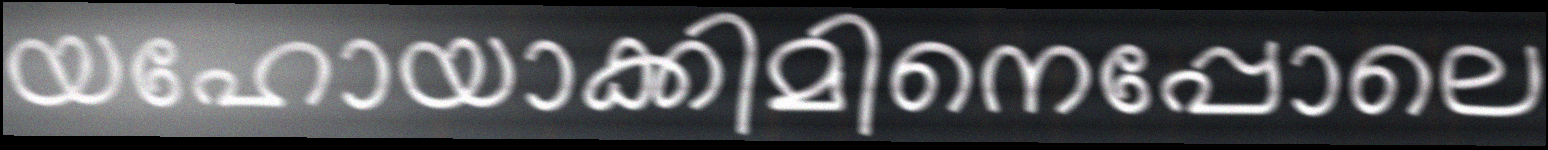
യഹോയാക്കിമിനെപ്പോലെ